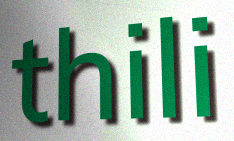
thili